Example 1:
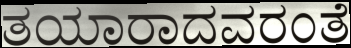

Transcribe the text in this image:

ತಯಾರಾದವರಂತೆ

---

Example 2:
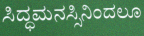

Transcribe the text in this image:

ಸಿದ್ಧಮನಸ್ಸಿನಿಂದಲೂ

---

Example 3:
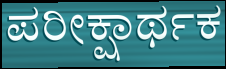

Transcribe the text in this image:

ಪರೀಕ್ಷಾರ್ಥಕ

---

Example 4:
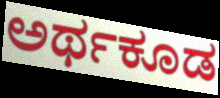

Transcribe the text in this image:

ಅರ್ಥಕೂಡ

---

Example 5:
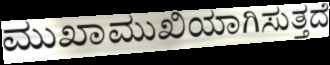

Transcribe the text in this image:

ಮುಖಾಮುಖಿಯಾಗಿಸುತ್ತದೆ